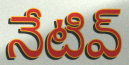
నేటివ్